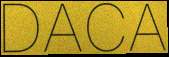
DACA